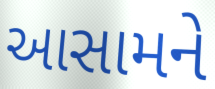
આસામને